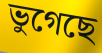
ভুগেছে